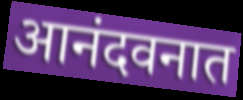
आनंदवनात